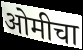
ओमीचा